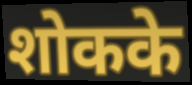
शोकके